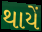
થાયેં